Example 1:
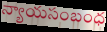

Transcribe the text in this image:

న్యాయసంబంధ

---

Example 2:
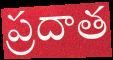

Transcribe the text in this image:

ప్రదాత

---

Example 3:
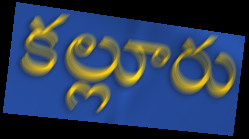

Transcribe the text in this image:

కల్లూరు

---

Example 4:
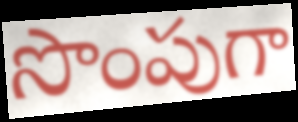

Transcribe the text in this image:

సొంపుగా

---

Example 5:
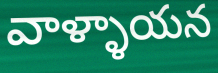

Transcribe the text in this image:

వాళ్ళాయన